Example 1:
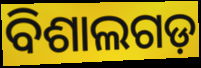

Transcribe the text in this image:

ବିଶାଲଗଡ଼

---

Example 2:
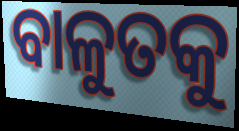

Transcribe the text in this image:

ବାଳୁତକୁ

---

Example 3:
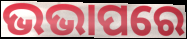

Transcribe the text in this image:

ଭଭାପରେ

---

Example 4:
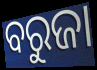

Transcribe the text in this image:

ବରୁଜା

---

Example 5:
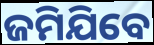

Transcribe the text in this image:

ଜମିଯିବେ